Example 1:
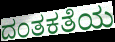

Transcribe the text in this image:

ದಂತಕತೆಯ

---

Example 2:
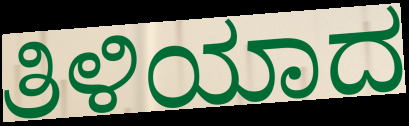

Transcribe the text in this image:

ತಿಳಿಯಾದ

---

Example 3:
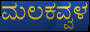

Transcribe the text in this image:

ಮಲಕವ್ವಳ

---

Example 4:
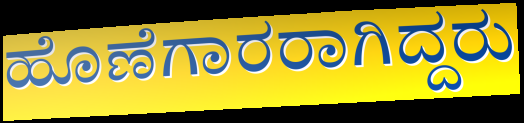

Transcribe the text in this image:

ಹೊಣೆಗಾರರಾಗಿದ್ದರು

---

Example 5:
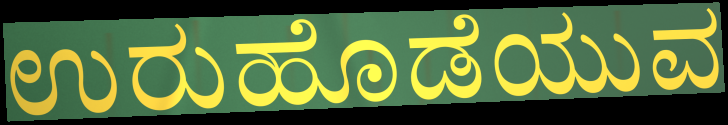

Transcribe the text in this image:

ಉರುಹೊಡೆಯುವ